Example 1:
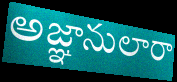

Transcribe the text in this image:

అజ్ఞానులారా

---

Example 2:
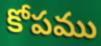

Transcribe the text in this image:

కోపము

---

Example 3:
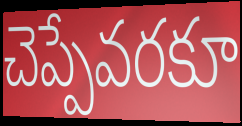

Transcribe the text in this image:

చెప్పేవరకూ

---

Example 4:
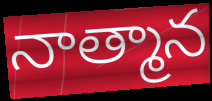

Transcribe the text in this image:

నాత్మాన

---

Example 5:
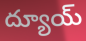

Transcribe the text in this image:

ద్యూయ్